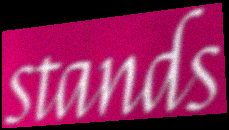
stands